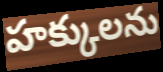
హక్కులను